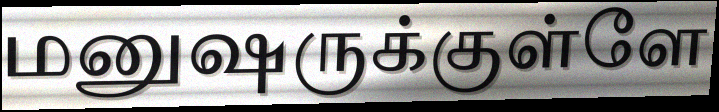
மனுஷருக்குள்ளே